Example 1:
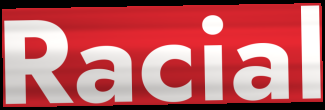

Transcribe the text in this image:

Racial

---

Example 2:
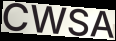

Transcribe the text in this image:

CWSA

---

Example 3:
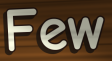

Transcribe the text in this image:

Few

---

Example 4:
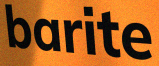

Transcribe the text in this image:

barite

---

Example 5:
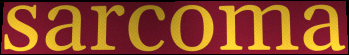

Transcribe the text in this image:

sarcoma